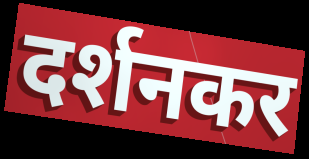
दर्शनकर